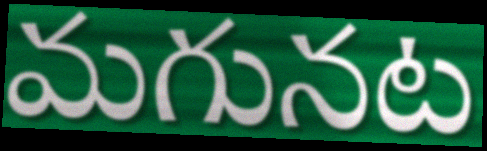
మగునట